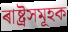
ৰাষ্ট্ৰসমূহক